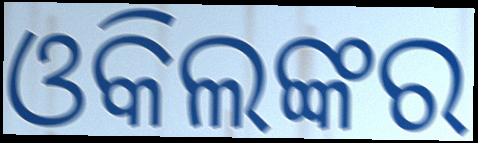
ଓକିଲଙ୍କର